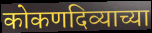
कोकणदिव्याच्या